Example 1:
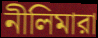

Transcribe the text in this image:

নীলিমারা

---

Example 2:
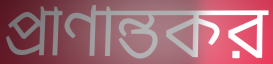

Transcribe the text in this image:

প্রাণান্তকর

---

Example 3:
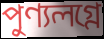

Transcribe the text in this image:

পুণ্যলগ্নে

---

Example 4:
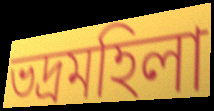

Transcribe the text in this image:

ভদ্রমহিলা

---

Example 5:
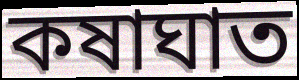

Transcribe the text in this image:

কষাঘাত